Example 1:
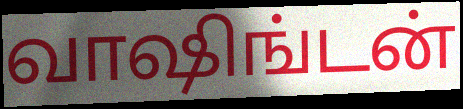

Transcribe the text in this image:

வாஷிங்டன்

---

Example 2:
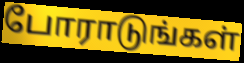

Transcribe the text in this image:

போராடுங்கள்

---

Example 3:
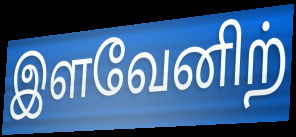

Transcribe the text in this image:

இளவேனிற்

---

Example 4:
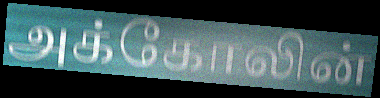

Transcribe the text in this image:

அக்கோலின்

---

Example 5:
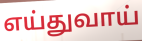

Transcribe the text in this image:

எய்துவாய்